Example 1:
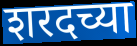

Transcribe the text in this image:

शरदच्या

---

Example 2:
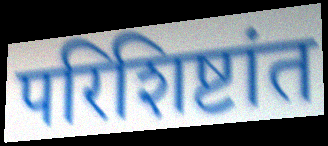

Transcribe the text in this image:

परिशिष्टांत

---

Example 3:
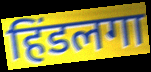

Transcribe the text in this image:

हिंडलगा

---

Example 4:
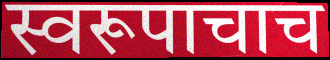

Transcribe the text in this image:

स्वरूपाचाच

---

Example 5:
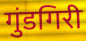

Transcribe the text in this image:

गुंडगिरी